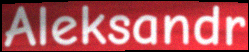
Aleksandr